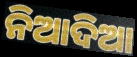
ନିଆଦିଆ